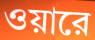
ওয়ারে